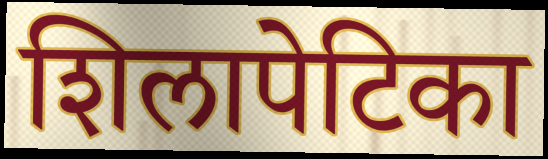
शिलापेटिका